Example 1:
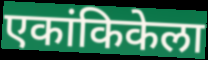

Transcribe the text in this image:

एकांकिकेला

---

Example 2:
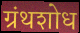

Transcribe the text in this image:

ग्रंथशोध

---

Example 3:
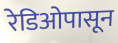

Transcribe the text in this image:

रेडिओपासून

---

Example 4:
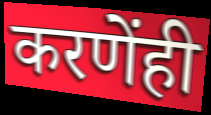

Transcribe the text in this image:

करणेंही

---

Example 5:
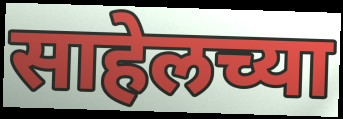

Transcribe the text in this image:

साहेलच्या